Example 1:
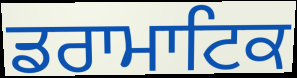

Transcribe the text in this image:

ਡਰਾਮਾਟਿਕ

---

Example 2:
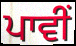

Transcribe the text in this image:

ਪਾਵੀਂ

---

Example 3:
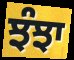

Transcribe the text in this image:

ਝੰਝਾ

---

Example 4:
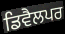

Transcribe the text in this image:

ਡਿਵੈਲਪਰ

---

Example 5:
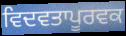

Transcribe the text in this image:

ਵਿਦਵਤਾਪੂਰਵਕ